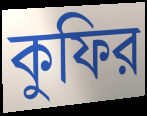
কুফির